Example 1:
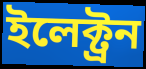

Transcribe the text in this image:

ইলেক্ট্ৰন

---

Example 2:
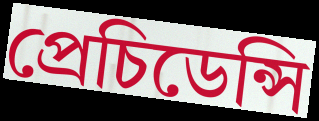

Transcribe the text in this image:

প্ৰেচিডেন্সি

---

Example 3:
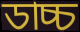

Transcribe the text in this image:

ডাচ্চ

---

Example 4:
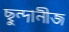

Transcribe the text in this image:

ছুন্দানীজ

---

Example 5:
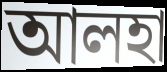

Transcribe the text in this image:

আলহা